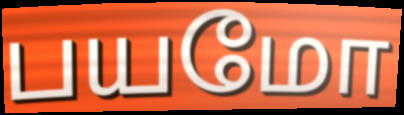
பயமோ